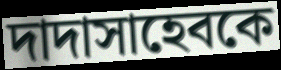
দাদাসাহেবকে